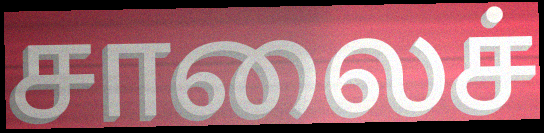
சாலைச்